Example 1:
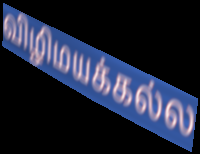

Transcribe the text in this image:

விழிமயக்கல்ல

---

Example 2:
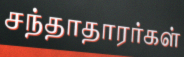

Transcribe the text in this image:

சந்தாதாரர்கள்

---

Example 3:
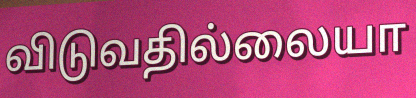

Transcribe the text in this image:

விடுவதில்லையா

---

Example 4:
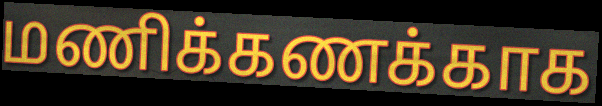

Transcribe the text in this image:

மணிக்கணக்காக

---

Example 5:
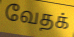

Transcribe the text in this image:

வேதக்